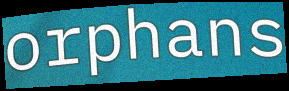
orphans